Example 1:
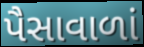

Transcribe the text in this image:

પૈસાવાળાં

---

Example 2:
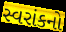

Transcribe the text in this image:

સ્વરાંકનો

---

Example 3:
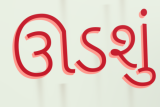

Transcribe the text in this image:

ઊડશું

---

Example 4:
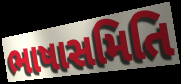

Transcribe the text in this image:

ભાષાસમિતિ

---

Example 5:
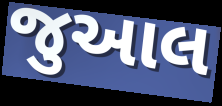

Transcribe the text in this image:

જુઆલ